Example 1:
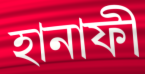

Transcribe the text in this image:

হানাফী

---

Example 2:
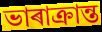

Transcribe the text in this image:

ভাৰাক্ৰান্ত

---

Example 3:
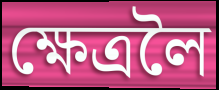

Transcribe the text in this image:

ক্ষেত্ৰলৈ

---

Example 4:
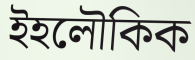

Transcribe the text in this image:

ইহলৌকিক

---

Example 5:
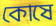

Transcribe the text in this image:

কোষে